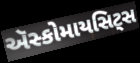
ઍસ્કોમાયસિટ્સ